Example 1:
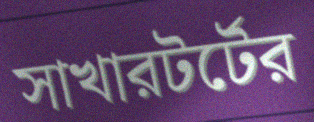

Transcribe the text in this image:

সাখারটর্টের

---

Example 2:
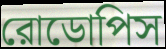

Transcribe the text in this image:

রোডোপিস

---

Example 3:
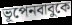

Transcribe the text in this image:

ভূপেনবাবুকে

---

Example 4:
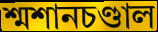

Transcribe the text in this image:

শ্মশানচণ্ডাল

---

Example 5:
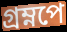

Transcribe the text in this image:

গ্রম্নপে